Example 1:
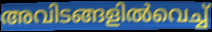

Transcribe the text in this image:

അവിടങ്ങളിൽവെച്ച്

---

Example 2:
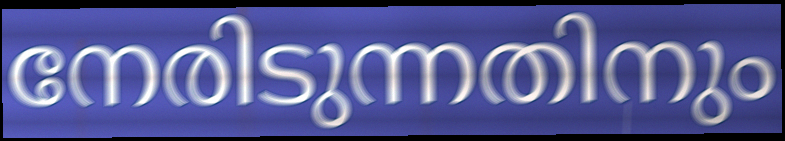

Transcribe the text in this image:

നേരിടുന്നതിനും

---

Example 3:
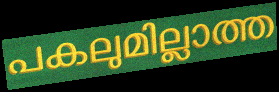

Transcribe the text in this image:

പകലുമില്ലാത്ത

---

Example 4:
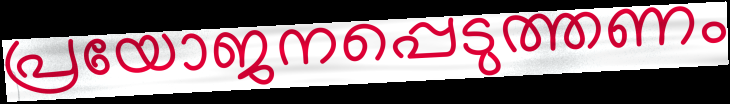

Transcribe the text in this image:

പ്രയോജനപ്പെടുത്തണം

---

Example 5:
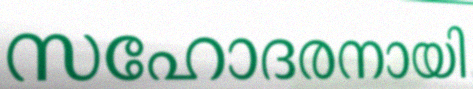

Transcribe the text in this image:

സഹോദരനായി